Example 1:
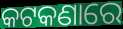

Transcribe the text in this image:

କଟକଣାରେ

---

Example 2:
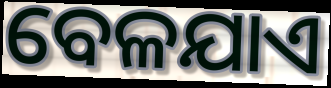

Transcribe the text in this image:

ବେଳଯାଏ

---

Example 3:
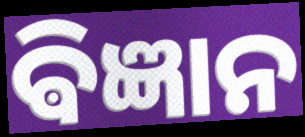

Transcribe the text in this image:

ଵିଜ୍ଞାନ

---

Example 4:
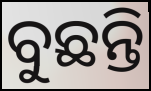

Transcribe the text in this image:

ବୁଛନ୍ତି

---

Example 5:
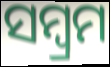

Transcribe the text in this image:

ସମ୍ବ୍ରମ